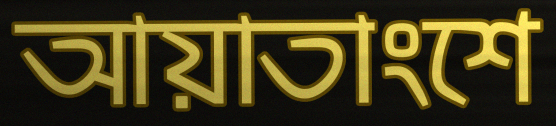
আয়াতাংশে